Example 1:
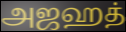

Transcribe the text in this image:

அஜஹத்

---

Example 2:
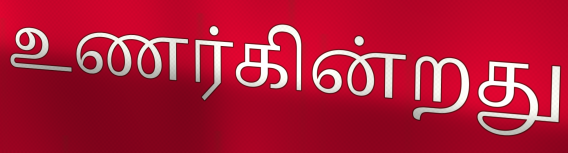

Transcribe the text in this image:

உணர்கின்றது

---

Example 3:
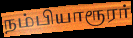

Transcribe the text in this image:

நம்பியாரூரர்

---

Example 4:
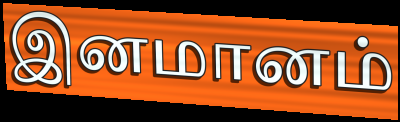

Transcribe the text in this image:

இனமானம்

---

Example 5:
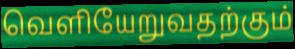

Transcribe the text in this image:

வெளியேறுவதற்கும்